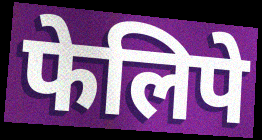
फेलिपे